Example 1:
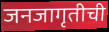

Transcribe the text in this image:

जनजागृतीची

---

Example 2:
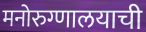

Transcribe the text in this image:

मनोरुग्णालयाची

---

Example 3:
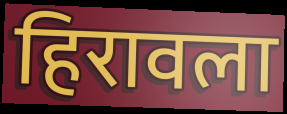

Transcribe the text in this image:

हिरावला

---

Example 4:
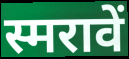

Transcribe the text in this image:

स्मरावें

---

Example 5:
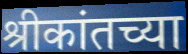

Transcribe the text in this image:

श्रीकांतच्या